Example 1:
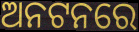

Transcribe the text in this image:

ଅନଟନରେ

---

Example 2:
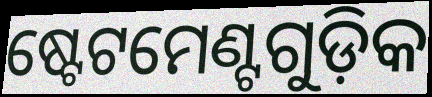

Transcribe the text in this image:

ଷ୍ଟେଟମେଣ୍ଟଗୁଡ଼ିକ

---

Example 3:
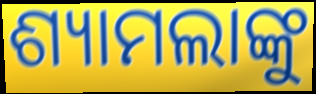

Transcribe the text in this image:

ଶ୍ୟାମଲାଙ୍କୁ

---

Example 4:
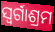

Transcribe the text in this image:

ସ୍ୱର୍ଗାଶ୍ରମ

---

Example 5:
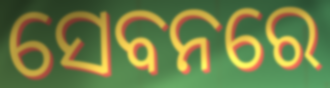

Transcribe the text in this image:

ସେବନରେ